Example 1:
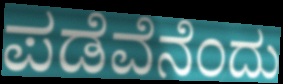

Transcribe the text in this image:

ಪಡೆವೆನೆಂದು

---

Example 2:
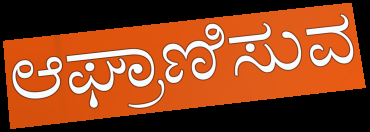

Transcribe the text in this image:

ಆಘ್ರಾಣಿಸುವ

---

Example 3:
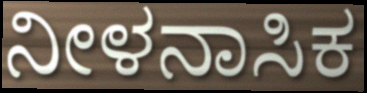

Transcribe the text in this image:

ನೀಳನಾಸಿಕ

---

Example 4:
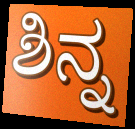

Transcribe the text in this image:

ಶಿನ್ನ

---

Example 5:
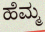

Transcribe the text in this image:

ಹೆಮ್ಮ